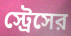
স্ট্রেসের